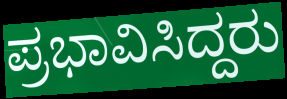
ಪ್ರಭಾವಿಸಿದ್ದರು